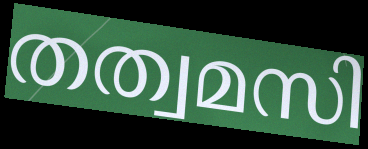
തത്വമസി